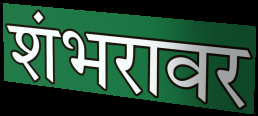
शंभरावर